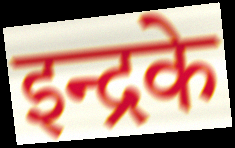
इन्द्रके